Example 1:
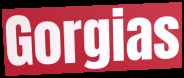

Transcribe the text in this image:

Gorgias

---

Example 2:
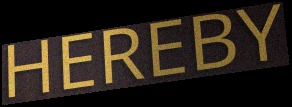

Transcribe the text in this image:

HEREBY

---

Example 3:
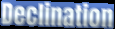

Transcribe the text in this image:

Declination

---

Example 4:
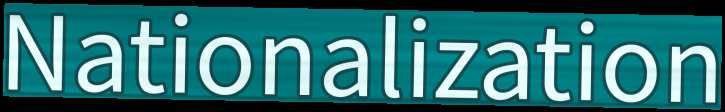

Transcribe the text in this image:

Nationalization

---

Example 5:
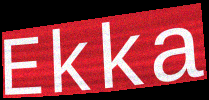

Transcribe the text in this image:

Ekka